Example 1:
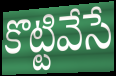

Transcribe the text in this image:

కొట్టివేసే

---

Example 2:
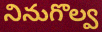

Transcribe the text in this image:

నినుగొల్వ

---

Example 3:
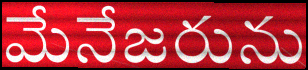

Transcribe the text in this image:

మేనేజరును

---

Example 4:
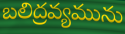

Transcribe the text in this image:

బలిద్రవ్యమును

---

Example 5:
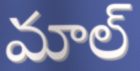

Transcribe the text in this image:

మాల్